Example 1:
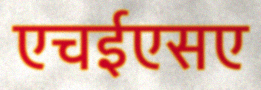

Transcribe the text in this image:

एचईएसए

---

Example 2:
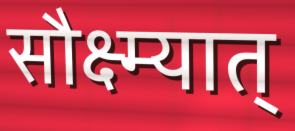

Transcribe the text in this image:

सौक्ष्म्यात्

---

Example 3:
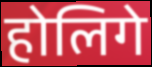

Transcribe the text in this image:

होलिगे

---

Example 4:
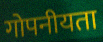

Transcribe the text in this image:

गोपनीयता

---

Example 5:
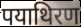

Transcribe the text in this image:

पयाथिरण